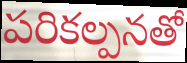
పరికల్పనతో